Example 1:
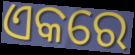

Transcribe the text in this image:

ଏକରେ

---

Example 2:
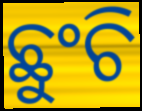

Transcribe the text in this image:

ଛୁଂଚି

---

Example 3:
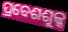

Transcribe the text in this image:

ପ୍ରବେଶଶୁଳ୍କ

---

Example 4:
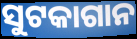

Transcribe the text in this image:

ସୁଟକାଗାନ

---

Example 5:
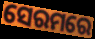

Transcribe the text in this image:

ସେରମରେ